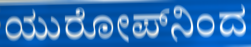
ಯುರೋಪ್‌ನಿಂದ